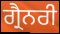
ਗ੍ਰੈਨਰੀ